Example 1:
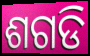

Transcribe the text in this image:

ଶଗଡି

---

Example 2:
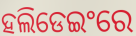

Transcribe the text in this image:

ହଲିଡେଇଂରେ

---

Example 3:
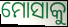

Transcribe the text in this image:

ମୋସାକୁ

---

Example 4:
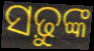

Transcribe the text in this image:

ସଢ଼ୁଙ୍କ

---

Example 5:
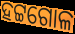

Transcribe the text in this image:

ହଟ୍ଟଗୋଳ